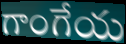
గాంగేయ